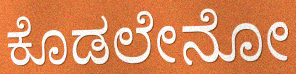
ಕೊಡಲೇನೋ